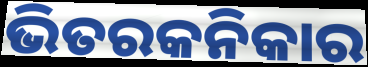
ଭିତରକନିକାର